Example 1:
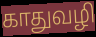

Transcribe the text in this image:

காதுவழி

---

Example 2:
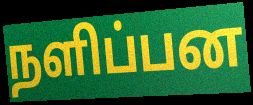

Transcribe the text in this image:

நளிப்பன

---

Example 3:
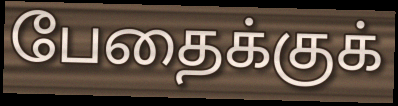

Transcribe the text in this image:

பேதைக்குக்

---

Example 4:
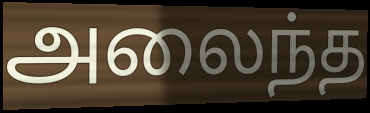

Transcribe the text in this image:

அலைந்த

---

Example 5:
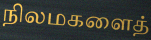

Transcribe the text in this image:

நிலமகளைத்